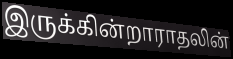
இருக்கின்றாராதலின்